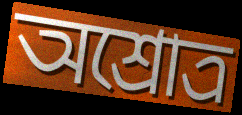
অশ্রোত্র